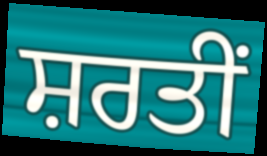
ਸ਼ਰਤੀਂ